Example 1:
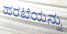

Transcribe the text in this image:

ಹರಟೆಯನ್ನು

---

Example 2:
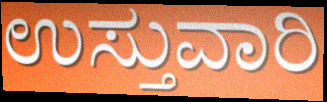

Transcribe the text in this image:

ಉಸ್ತುವಾರಿ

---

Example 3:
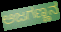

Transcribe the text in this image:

ಅಜಗಣ್ಣನ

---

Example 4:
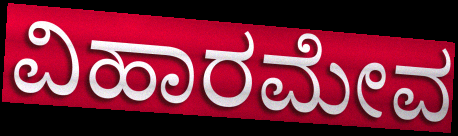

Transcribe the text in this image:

ವಿಹಾರಮೇವ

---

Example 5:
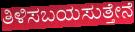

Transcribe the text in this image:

ತಿಳಿಸಬಯಸುತ್ತೇನೆ